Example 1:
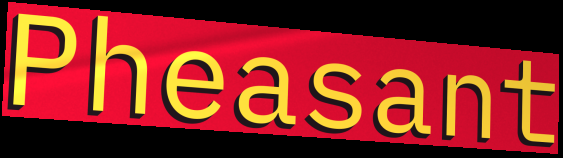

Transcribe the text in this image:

Pheasant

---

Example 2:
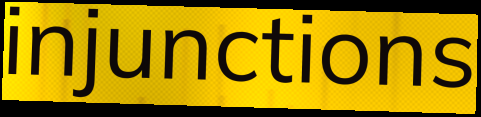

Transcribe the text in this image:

injunctions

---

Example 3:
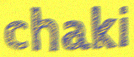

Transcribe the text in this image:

chaki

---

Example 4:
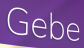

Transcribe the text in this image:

Gebe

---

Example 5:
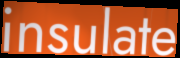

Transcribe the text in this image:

insulate